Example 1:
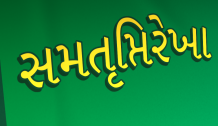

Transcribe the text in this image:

સમતૃપ્તિરેખા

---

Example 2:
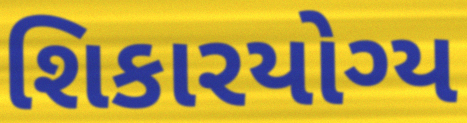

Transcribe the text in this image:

શિકારયોગ્ય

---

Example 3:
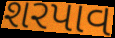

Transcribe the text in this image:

શરપાવ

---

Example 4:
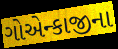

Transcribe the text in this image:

ગોએન્કાજીના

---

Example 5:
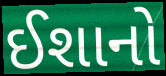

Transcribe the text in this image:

ઈશાનો